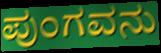
ಪುಂಗವನು